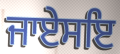
ਜਾਏਸਇ